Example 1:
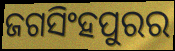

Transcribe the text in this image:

ଜଗସିଂହପୁରର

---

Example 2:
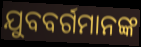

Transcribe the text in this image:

ଯୁବବର୍ଗମାନଙ୍କ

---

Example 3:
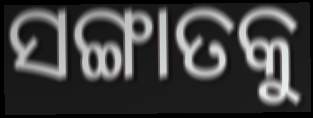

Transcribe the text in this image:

ସଙ୍ଗାତକୁ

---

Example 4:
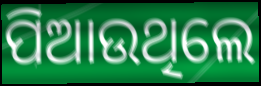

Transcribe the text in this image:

ପିଆଉଥିଲେ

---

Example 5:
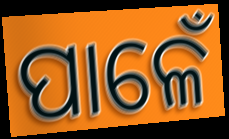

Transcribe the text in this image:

ପାଳେଁ